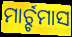
ମାର୍ଚ୍ଚମାସ